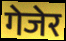
गेजेर